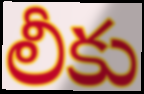
లీకు